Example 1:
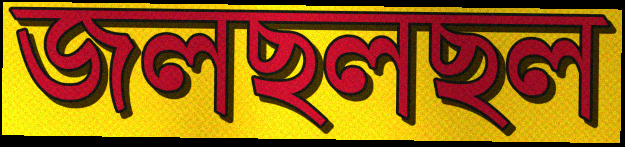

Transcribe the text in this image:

জলছলছল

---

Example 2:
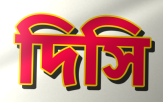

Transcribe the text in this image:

দিসি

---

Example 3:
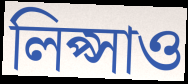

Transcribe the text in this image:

লিপ্সাও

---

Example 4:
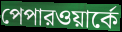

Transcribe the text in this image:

পেপারওয়ার্কে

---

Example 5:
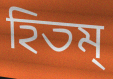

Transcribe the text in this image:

হিতম্